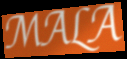
MALA